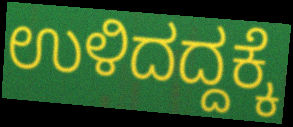
ಉಳಿದದ್ದಕ್ಕೆ